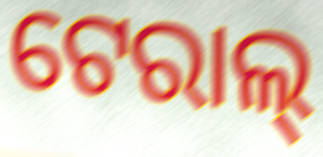
ଟେରାଲ୍